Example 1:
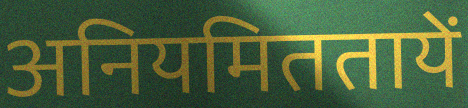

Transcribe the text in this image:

अनियमिततायें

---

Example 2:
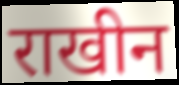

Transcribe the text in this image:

राखीन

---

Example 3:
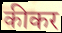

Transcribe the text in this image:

कीकर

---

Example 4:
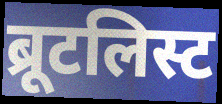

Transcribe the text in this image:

ब्रूटलिस्ट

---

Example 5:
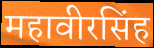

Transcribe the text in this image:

महावीरसिंह